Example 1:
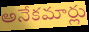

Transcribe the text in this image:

అనేకమార్లు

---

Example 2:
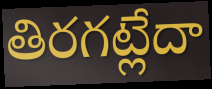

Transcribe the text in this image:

తిరగట్లేదా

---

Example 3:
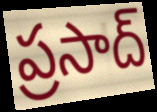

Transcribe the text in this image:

ప్రసాద్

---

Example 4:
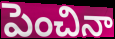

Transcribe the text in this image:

పెంచినా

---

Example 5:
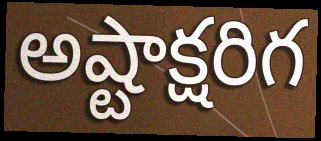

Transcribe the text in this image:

అష్టాక్షరిగ